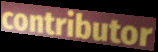
contributor